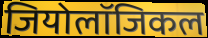
जियोलॉजिकल